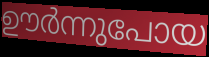
ഊർന്നുപോയ